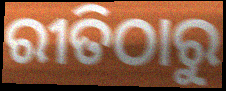
ରୀତିଠାରୁ